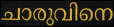
ചാരുവിനെ